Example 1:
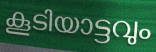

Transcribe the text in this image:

കൂടിയാട്ടവും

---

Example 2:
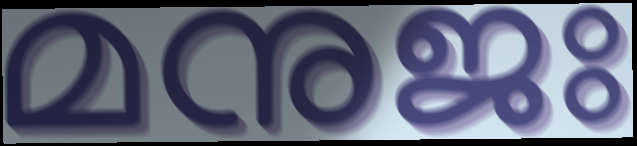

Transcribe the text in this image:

മനുജഃ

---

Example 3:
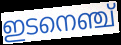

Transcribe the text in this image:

ഇടനെഞ്ച്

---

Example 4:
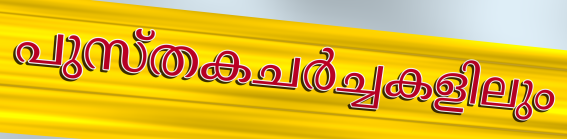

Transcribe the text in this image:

പുസ്തകചർച്ചകളിലും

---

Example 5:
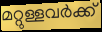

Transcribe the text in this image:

മറ്റുള്ളവർക്ക്